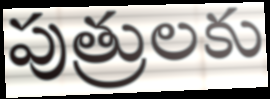
పుత్రులకు